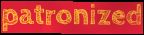
patronized